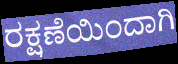
ರಕ್ಷಣೆಯಿಂದಾಗಿ